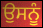
ਉਸਨੂੰ